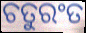
ଚତୁରଂତ